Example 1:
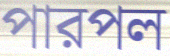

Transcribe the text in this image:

পারপল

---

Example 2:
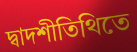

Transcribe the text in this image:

দ্বাদশীতিথিতে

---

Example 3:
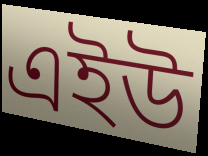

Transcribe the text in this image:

এইউ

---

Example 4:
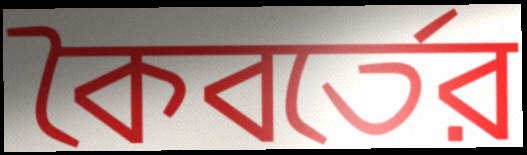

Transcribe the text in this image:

কৈবর্তের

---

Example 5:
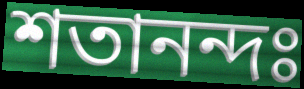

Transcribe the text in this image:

শতানন্দঃ